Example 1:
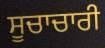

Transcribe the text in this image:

ਸੂਚਾਚਾਰੀ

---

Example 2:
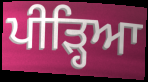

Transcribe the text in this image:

ਪੀੜ੍ਹਿਆ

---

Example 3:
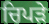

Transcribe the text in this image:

ਚਿਪੜੇ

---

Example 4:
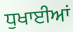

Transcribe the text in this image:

ਧੁਖਾਈਆਂ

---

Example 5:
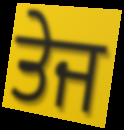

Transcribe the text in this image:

ਤੇਜ